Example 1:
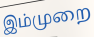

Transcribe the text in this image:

இம்முறை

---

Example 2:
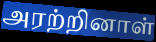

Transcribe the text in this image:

அரற்றினாள்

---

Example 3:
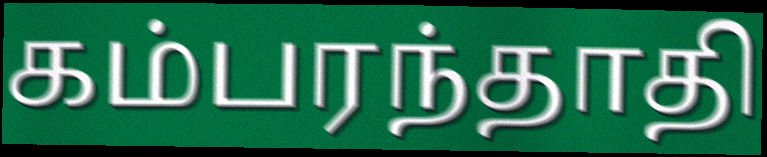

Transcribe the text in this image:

கம்பரந்தாதி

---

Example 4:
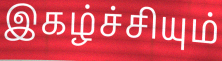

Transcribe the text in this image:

இகழ்ச்சியும்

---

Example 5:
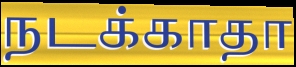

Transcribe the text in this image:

நடக்காதா